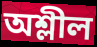
অশ্লীল